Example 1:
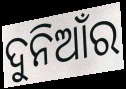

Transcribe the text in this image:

ଦୁନିଆଁର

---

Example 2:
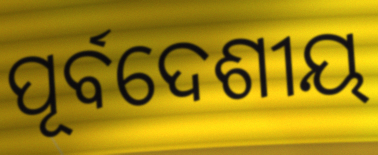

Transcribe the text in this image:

ପୂର୍ବଦେଶୀୟ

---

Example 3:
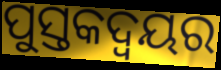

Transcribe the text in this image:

ପୁସ୍ତକଦ୍ୱୟର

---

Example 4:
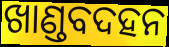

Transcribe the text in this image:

ଖାଣ୍ଡବଦହନ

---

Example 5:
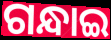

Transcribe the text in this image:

ଗନ୍ଧାଇ